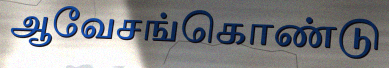
ஆவேசங்கொண்டு